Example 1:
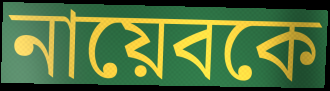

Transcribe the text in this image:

নায়েবকে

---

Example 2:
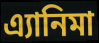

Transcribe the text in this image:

এ্যানিমা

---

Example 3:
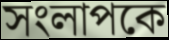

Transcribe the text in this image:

সংলাপকে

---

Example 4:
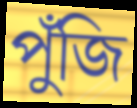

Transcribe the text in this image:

পুঁজি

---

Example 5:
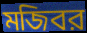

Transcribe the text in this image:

মজিবর